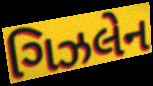
ગિઝલેન